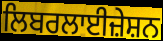
ਲਿਬਰਲਾਈਜ਼ੇਸ਼ਨ